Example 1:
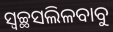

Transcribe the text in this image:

ସ୍ୱଚ୍ଛସଲିଳବାବୁ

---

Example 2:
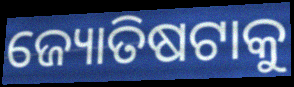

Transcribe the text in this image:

ଜ୍ୟୋତିଷଟାକୁ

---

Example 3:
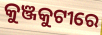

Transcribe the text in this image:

କୁଞ୍ଜକୁଟୀରେ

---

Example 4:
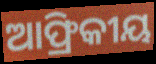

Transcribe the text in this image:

ଆଫ୍ରିକୀୟ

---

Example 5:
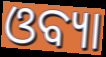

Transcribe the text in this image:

ଓବ୍ୟା